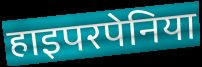
हाइपरपेनिया